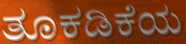
ತೂಕಡಿಕೆಯ